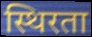
स्थिरता